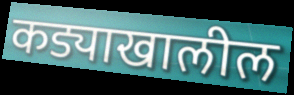
कड्याखालील